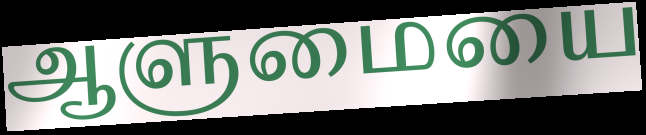
ஆளுமையை